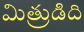
మిత్రుడిది